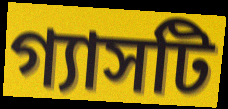
গ্যাসটি